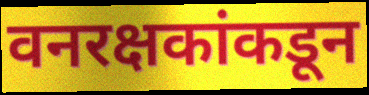
वनरक्षकांकडून